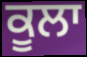
ਕੂਲਾ